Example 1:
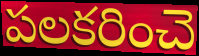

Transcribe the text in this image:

పలకరించె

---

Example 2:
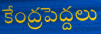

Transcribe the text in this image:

కేంద్రపెద్దలు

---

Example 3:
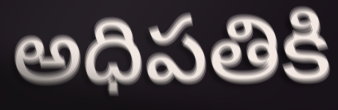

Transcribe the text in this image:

అధిపతికి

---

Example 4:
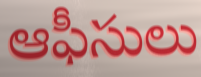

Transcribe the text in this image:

ఆఫీసులు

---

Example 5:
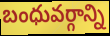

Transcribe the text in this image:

బంధువర్గాన్ని